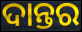
ଦାନ୍ତର